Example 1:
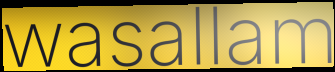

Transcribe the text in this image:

wasallam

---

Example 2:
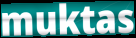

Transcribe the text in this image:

muktas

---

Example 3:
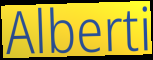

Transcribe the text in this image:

Alberti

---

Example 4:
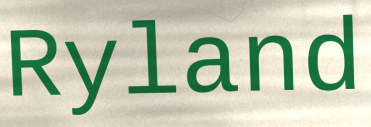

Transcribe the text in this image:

Ryland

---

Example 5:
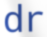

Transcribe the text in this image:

dr